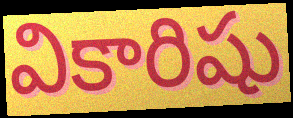
వికారిషు